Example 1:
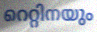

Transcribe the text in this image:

റെറ്റിനയും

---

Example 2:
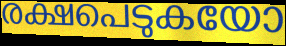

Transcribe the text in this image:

രക്ഷപെടുകയോ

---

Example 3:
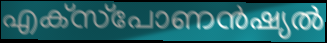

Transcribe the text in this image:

എക്‌സ്‌പോണൻഷ്യൽ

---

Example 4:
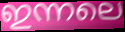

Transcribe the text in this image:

ഇന്നലെ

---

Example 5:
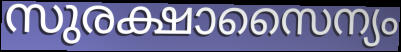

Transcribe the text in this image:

സുരക്ഷാസൈന്യം